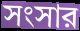
সংসার